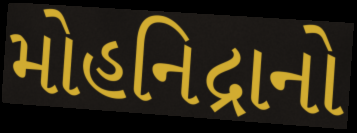
મોહનિદ્રાનો